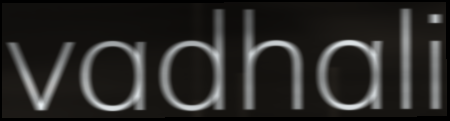
vadhali